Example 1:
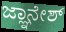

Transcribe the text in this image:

ಜ್ಞಾನೇಶ್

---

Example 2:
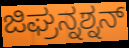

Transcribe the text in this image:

ಜಿಘ್ರನ್ನಶ್ನನ್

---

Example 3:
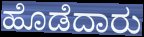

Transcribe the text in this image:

ಹೊಡೆದಾರು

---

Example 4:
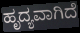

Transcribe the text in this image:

ಹೃದ್ಯವಾಗಿದೆ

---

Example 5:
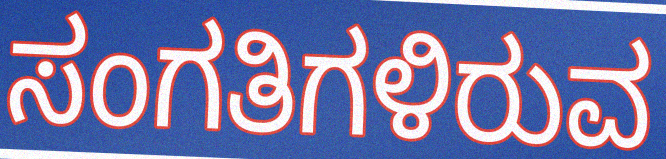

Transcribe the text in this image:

ಸಂಗತಿಗಳಿರುವ